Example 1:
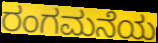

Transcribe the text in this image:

ರಂಗಮನೆಯ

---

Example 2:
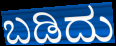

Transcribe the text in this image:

ಬಡಿದು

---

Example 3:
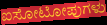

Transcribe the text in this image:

ಐಸೋಟೋಪುಗಳು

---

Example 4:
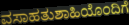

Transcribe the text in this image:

ವಸಾಹತುಶಾಹಿಯೊಂದಿಗೆ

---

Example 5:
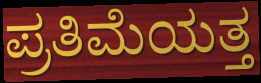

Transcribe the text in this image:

ಪ್ರತಿಮೆಯತ್ತ